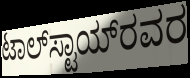
ಟಾಲ್‌ಸ್ಟಾಯ್‌ರವರ